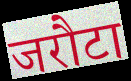
जरौटा